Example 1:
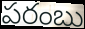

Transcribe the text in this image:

పరంబు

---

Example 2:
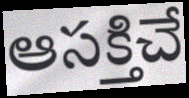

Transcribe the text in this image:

ఆసక్తిచే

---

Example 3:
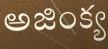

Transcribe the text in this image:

అజింక్య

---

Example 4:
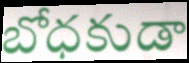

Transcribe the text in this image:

బోధకుడా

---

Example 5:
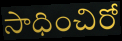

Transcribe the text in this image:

సాధించిరో